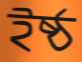
ইষ্ঠ